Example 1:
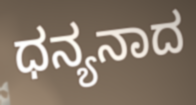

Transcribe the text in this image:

ಧನ್ಯನಾದ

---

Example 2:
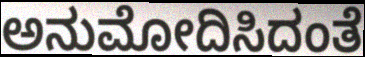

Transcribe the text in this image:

ಅನುಮೋದಿಸಿದಂತೆ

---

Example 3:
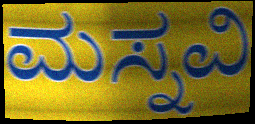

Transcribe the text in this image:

ಮಸ್ನವಿ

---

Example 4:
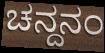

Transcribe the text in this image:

ಚನ್ದನಂ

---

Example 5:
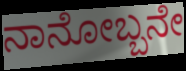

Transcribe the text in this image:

ನಾನೋಬ್ಬನೇ